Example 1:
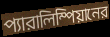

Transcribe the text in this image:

প্যারালিম্পিয়ানের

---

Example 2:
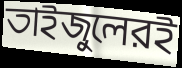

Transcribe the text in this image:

তাইজুলেরই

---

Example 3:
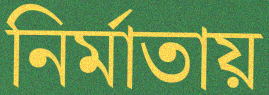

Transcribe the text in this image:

নির্মাতায়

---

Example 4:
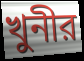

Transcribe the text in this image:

খুনীর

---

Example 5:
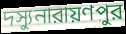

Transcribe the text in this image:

দস্যুনারায়ণপুর